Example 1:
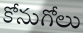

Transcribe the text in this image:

కోనుగోలు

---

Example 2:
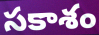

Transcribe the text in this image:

సకాశం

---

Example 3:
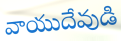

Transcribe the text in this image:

వాయుదేవుడి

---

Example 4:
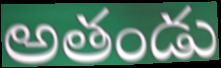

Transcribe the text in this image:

అతండు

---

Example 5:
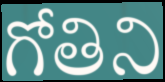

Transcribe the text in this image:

గోతిని